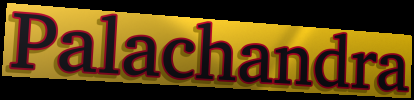
Palachandra